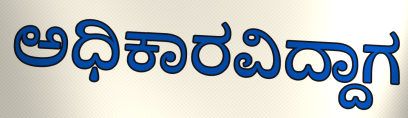
ಅಧಿಕಾರವಿದ್ದಾಗ